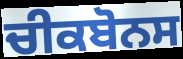
ਚੀਕਬੋਨਸ